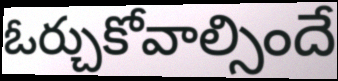
ఓర్చుకోవాల్సిందే